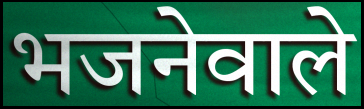
भजनेवाले